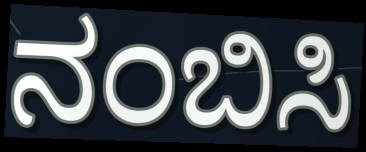
ನಂಬಿಸಿ